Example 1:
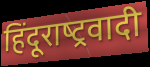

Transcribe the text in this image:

हिंदूराष्ट्रवादी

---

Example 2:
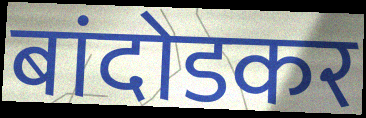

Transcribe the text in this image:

बांदोडकर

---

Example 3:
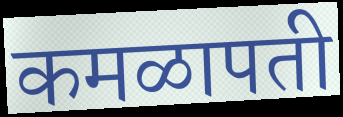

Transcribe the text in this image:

कमळापती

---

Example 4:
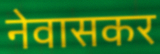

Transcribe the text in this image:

नेवासकर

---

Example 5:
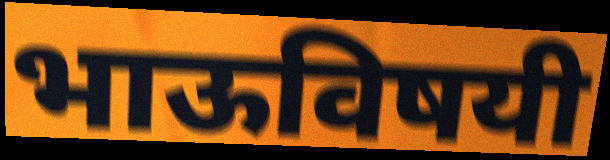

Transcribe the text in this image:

भाऊविषयी